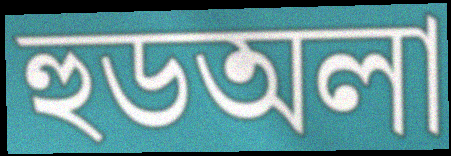
হুডঅলা